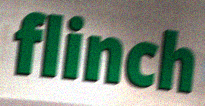
flinch